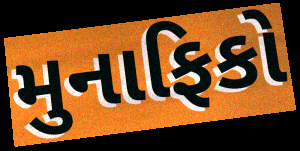
મુનાફિકો